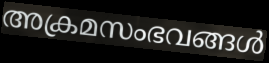
അക്രമസംഭവങ്ങൾ